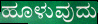
ಹೂಳುವುದು